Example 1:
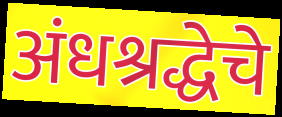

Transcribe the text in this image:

अंधश्रद्धेचे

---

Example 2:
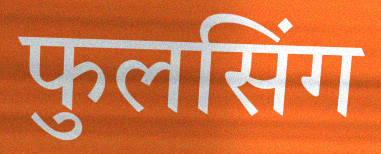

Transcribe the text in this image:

फुलसिंग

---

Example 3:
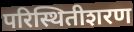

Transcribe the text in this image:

परिस्थितीशरण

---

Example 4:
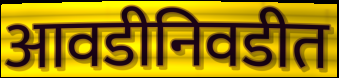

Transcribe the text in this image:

आवडीनिवडीत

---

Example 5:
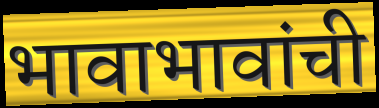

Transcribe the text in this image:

भावाभावांची